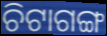
ଚିଟାଗଙ୍ଗ